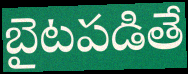
బైటపడితే